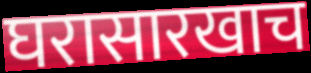
घरासारखाच